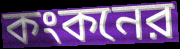
কংকনের